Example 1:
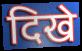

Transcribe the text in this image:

दिखे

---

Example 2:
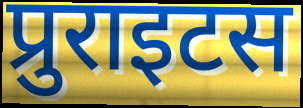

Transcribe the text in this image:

प्रुराइटस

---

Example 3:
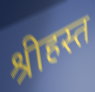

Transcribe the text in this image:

श्रीहस्त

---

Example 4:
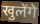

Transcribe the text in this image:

खुलेंगे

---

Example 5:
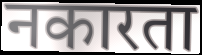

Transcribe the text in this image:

नकारता